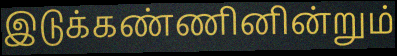
இடுக்கண்ணினின்றும்